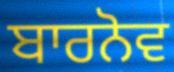
ਬਾਰਨੋਵ